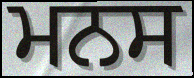
ਮਨਸ